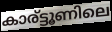
കാര്ട്ടൂണിലെ